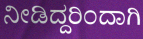
ನೀಡಿದ್ದರಿಂದಾಗಿ